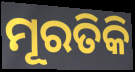
ମୂରତିକି